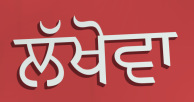
ਲੱਖੋਵਾ